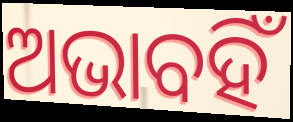
ଅଭାବହିଁ